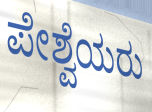
ಪೇಶ್ವೆಯರು